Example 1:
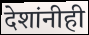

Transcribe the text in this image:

देशांनीही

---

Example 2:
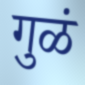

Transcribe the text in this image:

गुळं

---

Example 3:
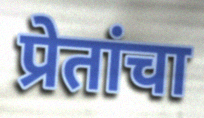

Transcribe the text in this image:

प्रेतांचा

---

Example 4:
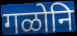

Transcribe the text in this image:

गळोनि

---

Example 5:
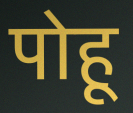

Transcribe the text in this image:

पोहू